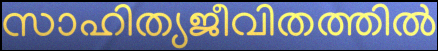
സാഹിത്യജീവിതത്തിൽ